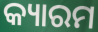
କ୍ୟାରମ